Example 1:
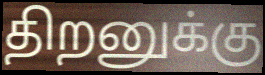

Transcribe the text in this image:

திறனுக்கு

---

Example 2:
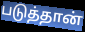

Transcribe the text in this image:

படுத்தான்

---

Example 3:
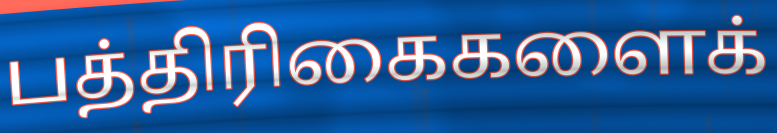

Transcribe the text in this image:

பத்திரிகைகளைக்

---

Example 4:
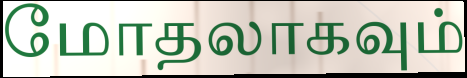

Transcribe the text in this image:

மோதலாகவும்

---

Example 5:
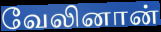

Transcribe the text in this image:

வேலினான்